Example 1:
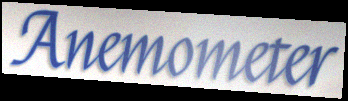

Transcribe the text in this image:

Anemometer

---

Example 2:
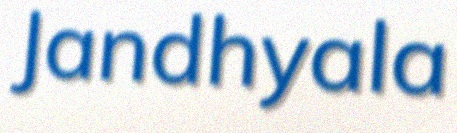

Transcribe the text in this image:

Jandhyala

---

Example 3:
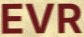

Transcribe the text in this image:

EVR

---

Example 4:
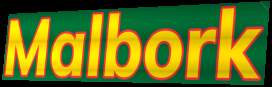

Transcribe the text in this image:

Malbork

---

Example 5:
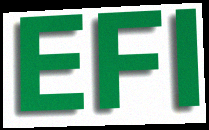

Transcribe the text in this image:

EFI